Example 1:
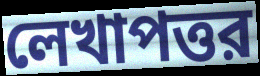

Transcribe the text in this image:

লেখাপত্তর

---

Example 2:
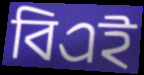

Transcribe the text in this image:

বিএই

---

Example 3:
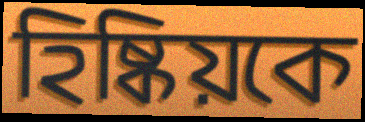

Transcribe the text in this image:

হিষ্কিয়কে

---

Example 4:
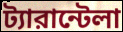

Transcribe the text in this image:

ট্যারান্টেলা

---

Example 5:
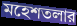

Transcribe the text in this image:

মহেশতলার